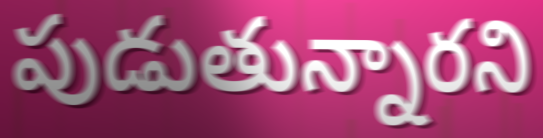
పుడుతున్నారని